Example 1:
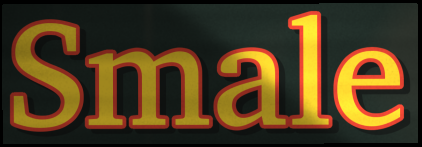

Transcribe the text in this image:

Smale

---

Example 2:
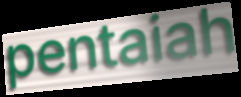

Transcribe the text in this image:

pentaiah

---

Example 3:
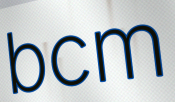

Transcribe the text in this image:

bcm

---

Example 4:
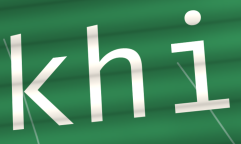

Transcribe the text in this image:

khi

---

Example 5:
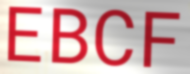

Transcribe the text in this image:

EBCF